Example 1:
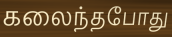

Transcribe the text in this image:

கலைந்தபோது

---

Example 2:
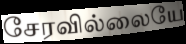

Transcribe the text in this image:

சேரவில்லையே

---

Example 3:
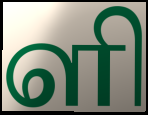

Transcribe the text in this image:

ளி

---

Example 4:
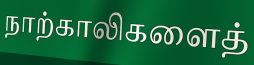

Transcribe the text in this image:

நாற்காலிகளைத்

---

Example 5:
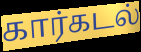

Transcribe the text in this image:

கார்கடல்